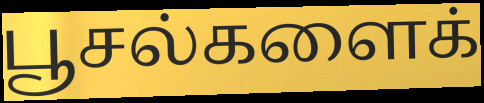
பூசல்களைக்